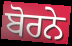
ਬੋਰਨੇ